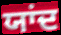
ਯਾਂਦ